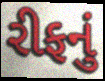
રીફનું